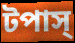
টপাস্